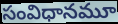
సంవిధానమూ